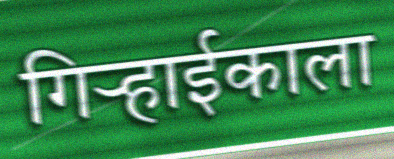
गिऱ्हाईकाला